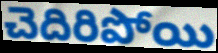
చెదిరిపోయి